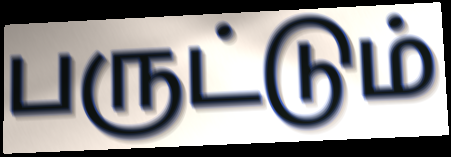
பருட்டும்